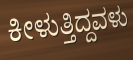
ಕೀಳುತ್ತಿದ್ದವಳು